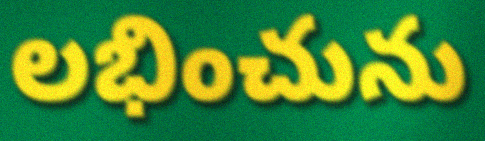
లభించును